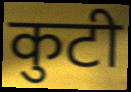
कुटी